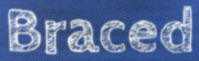
Braced